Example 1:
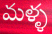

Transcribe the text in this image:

మళ్ళ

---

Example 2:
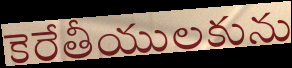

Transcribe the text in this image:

కెరేతీయులకును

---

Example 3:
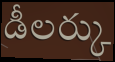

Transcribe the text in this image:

డీలర్కు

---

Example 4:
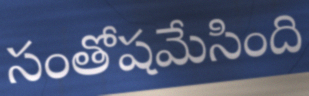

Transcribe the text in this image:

సంతోషమేసింది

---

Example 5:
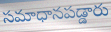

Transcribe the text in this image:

సమాధానపడ్డారు